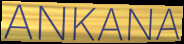
ANKANA